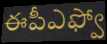
ఈపీఎఫ్వో